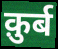
क़ुर्ब